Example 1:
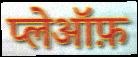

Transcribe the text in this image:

प्लेऑफ़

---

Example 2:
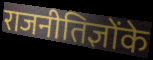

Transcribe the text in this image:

राजनीतिज्ञोंके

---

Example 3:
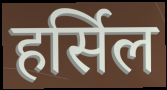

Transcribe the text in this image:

हर्सिल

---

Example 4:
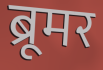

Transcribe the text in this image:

ब्रूमर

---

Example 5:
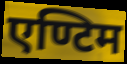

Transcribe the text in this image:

एण्टिम